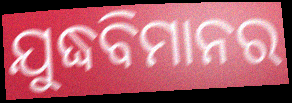
ଯୁଦ୍ଧବିମାନର